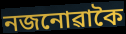
নজনোৱাকৈ